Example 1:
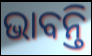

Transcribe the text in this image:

ଭାବନ୍ତି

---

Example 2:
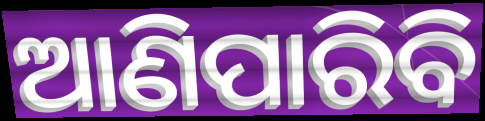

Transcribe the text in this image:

ଆଣିପାରିବି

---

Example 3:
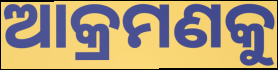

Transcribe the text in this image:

ଆକ୍ରମଣକୁ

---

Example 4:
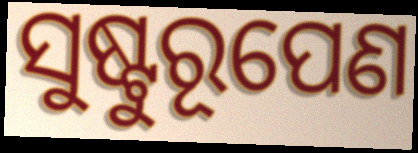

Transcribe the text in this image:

ସୁଷ୍ଟୁରୂପେଣ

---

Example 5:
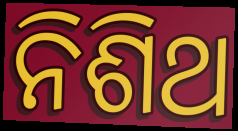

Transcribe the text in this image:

ନିଶିଥ